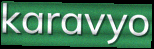
karavyo